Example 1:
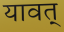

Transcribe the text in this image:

यावत्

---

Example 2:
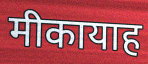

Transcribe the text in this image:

मीकायाह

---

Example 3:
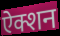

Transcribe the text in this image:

ऐक्शन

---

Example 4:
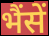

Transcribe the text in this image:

भैंसें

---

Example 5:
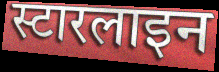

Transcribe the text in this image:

स्टारलाइन